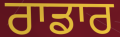
ਰਾਡਾਰ